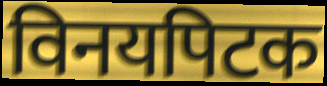
विनयपिटक